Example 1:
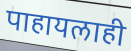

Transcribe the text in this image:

पाहायलाही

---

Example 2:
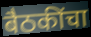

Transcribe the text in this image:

बैठकींचा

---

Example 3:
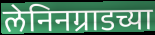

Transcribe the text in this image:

लेनिनग्राडच्या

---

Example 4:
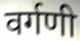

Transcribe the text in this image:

वर्गणी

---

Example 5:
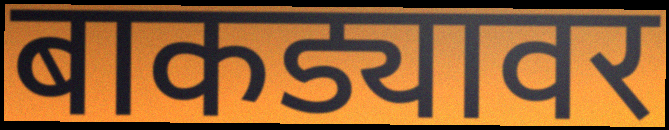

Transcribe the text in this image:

बाकड्यावर